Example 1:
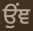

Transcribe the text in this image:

ਉਂਞ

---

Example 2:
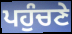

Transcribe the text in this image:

ਪਹੁੰਚਣੇ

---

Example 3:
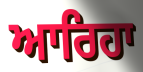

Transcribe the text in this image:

ਆਰਿਹਾ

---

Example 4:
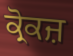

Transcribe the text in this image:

ਕ੍ਰੋਕਜ਼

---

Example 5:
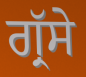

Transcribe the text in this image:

ਗ੍ਰੱਸੇ